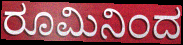
ರೂಮಿನಿಂದ